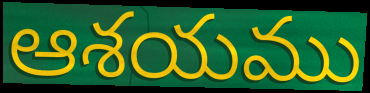
ఆశయము